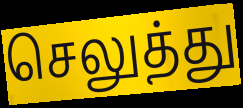
செலுத்து